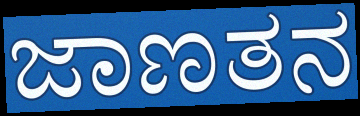
ಜಾಣತನ